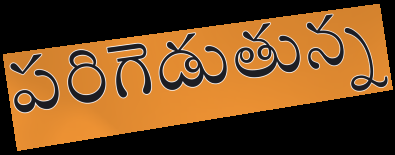
పరిగెడుతున్న